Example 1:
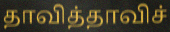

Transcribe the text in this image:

தாவித்தாவிச்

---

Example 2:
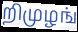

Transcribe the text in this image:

றிமுழங்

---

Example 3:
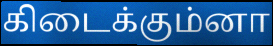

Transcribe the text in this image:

கிடைக்கும்னா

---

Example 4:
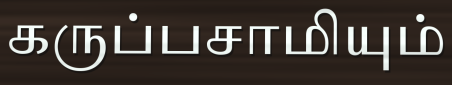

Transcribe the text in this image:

கருப்பசாமியும்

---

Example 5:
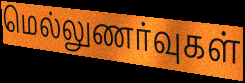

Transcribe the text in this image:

மெல்லுணர்வுகள்